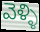
వెళ్ళి